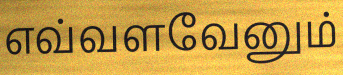
எவ்வளவேனும்